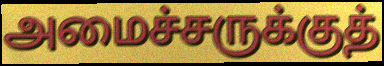
அமைச்சருக்குத்